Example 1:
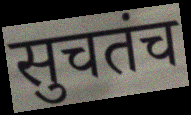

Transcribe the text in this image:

सुचतंच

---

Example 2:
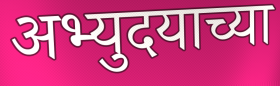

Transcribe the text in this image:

अभ्युदयाच्या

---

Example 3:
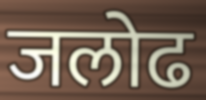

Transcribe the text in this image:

जलोढ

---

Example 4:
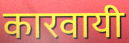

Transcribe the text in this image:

कारवायी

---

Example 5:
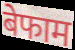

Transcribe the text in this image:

बेफाम